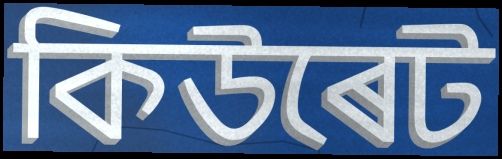
কিউৰেট